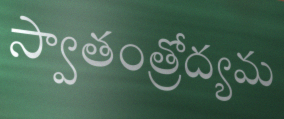
స్వాతంత్రోద్యమ